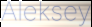
Aleksey